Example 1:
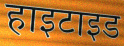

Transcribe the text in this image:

हाइटाइड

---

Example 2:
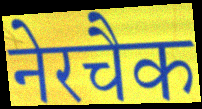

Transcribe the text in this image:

नेरचैक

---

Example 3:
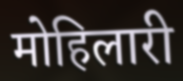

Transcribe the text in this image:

मोहिलारी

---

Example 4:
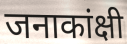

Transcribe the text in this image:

जनाकांक्षी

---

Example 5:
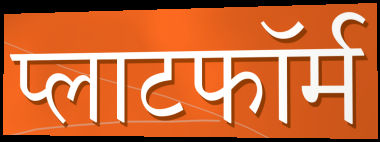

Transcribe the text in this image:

प्लाटफॉर्म